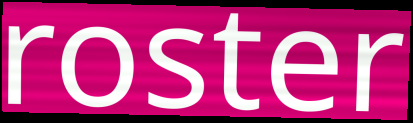
roster